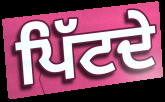
ਪਿੱਟਦੇ